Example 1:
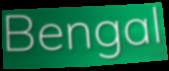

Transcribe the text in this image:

Bengal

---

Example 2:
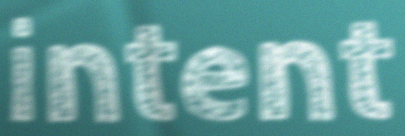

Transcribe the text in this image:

intent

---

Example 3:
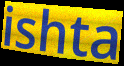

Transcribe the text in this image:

ishta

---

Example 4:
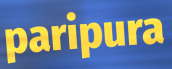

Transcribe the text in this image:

paripura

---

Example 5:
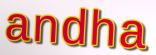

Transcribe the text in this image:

andha